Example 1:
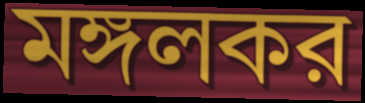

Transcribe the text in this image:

মঙ্গলকর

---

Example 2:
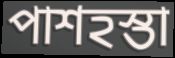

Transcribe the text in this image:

পাশহস্তা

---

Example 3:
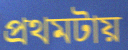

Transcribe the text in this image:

প্রথমটায়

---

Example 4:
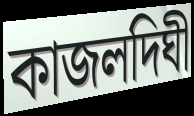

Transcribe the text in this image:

কাজলদিঘী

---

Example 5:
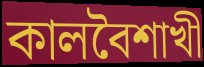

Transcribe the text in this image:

কালবৈশাখী